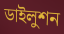
ডাইলুশন